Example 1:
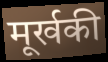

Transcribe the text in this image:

मूर्खकी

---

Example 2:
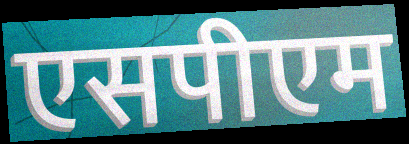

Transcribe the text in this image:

एसपीएम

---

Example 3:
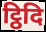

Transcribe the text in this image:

ट्ठिदि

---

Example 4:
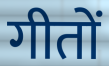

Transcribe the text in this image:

गीतों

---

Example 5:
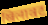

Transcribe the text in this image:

खिलावट